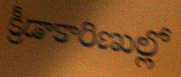
క్రీడాకారిణుల్లో